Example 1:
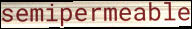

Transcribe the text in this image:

semipermeable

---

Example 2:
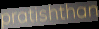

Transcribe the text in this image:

pratishthan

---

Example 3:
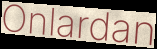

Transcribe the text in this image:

Onlardan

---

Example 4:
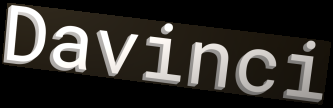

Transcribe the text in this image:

Davinci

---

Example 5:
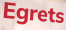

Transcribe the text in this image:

Egrets